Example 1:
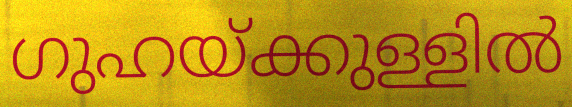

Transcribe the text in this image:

ഗുഹയ്ക്കുള്ളിൽ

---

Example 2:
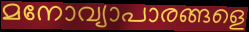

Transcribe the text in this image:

മനോവ്യാപാരങ്ങളെ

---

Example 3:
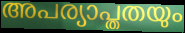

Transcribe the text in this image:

അപര്യാപ്തതയും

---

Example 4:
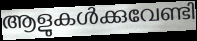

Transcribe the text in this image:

ആളുകൾക്കുവേണ്ടി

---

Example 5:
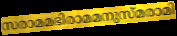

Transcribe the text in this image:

സരാമമഭിരാമമനുസ്മരാമി